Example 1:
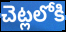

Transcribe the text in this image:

చెట్లలోకి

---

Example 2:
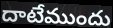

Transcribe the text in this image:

దాటేముందు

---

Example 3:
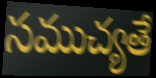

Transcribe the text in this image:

సముచ్యతే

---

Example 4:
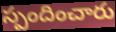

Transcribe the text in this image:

స్పందించారు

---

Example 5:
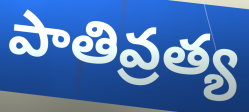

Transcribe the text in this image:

పాతివ్రత్య